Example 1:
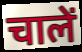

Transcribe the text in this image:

चालें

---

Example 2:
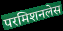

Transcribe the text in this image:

परमिशनलेस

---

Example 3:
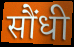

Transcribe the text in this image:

सौंधी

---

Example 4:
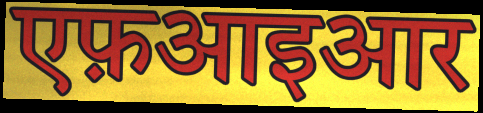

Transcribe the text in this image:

एफ़आइआर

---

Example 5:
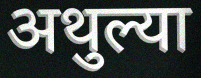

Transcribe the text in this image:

अथुल्या